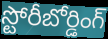
స్టోరీబోర్డింగ్